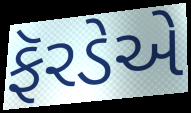
ફૅરડેએ